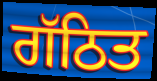
ਗੱਠਿਤ